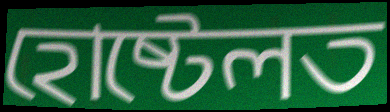
হোষ্টেলত